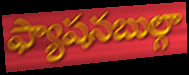
ఫ్యాషనబుల్గా